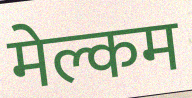
मेल्कम